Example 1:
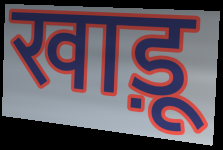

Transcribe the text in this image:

खाड़ू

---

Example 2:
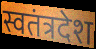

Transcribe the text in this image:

स्वतंत्रदेश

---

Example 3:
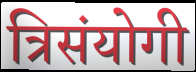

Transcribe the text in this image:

त्रिसंयोगी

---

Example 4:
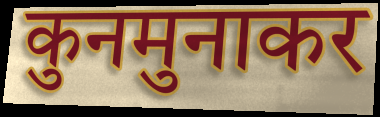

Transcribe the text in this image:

कुनमुनाकर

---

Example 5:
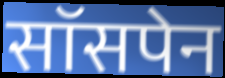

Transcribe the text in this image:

सॉसपेन